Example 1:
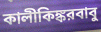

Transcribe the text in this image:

কালীকিঙ্করবাবু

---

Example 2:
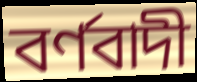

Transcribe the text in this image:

বর্ণবাদী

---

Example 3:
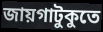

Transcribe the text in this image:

জায়গাটুকুতে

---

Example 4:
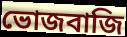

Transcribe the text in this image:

ভোজবাজি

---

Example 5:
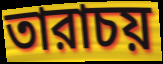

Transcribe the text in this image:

তারাচয়